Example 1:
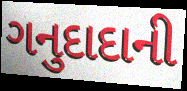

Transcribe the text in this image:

ગનુદાદાની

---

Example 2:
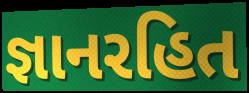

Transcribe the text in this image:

જ્ઞાનરહિત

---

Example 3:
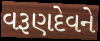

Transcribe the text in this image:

વરૂણદેવને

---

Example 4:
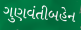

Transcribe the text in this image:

ગુણવંતીબહેન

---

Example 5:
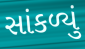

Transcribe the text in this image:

સાંકળ્યું